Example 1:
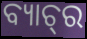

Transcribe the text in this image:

ବ୍ୟାଚ୍‌ର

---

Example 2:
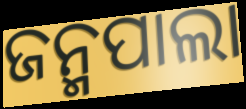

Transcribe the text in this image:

ଜନ୍ମପାଲା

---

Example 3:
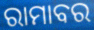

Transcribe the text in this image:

ରାମାବର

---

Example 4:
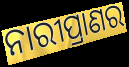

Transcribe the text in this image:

ନାରୀପ୍ରାଣର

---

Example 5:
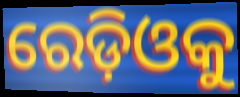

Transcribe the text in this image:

ରେଡ଼ିଓକୁ